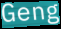
Geng